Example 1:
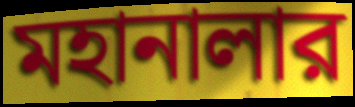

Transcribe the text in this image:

মহানালার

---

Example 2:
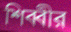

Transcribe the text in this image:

শিব্বীর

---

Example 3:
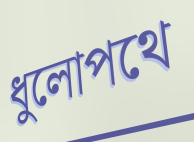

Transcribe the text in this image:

ধুলোপথে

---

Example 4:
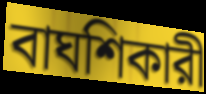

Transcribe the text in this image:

বাঘশিকারী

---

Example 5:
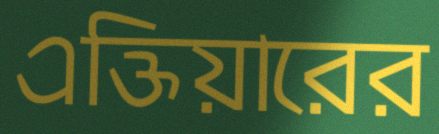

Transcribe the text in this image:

এক্তিয়ারের